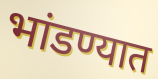
भांडण्यात